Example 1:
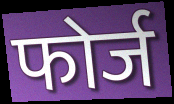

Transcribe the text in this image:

फोर्ज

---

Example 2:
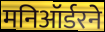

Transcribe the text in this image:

मनिऑर्डरने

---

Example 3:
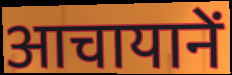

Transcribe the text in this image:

आचायानें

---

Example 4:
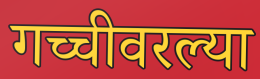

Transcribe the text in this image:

गच्चीवरल्या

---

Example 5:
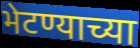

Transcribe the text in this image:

भेटण्याच्या